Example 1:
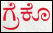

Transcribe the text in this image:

ಗ್ರೆಕೊ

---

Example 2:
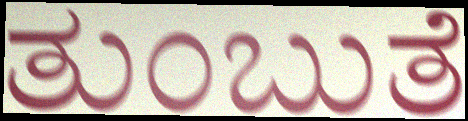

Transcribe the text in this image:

ತುಂಬುತೆ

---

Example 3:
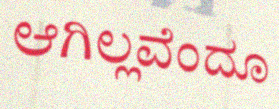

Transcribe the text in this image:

ಆಗಿಲ್ಲವೆಂದೂ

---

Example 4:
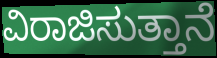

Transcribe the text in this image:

ವಿರಾಜಿಸುತ್ತಾನೆ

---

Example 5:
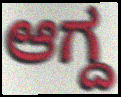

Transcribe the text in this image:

ಆಗ್ದ